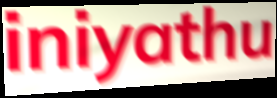
iniyathu